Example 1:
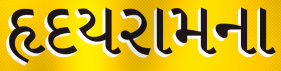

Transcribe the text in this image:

હૃદયરામના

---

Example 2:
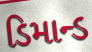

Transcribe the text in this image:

ડિમાન્ડ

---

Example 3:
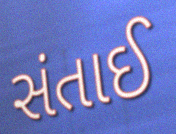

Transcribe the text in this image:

સંતાઈ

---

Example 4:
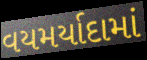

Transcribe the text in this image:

વયમર્યાદામાં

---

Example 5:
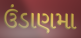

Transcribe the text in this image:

ઉંડાણમા